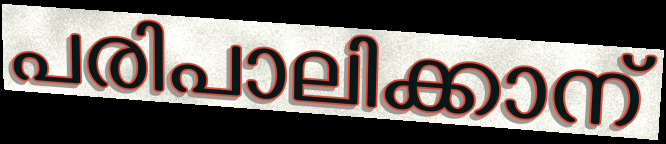
പരിപാലിക്കാന്